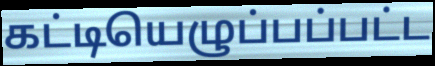
கட்டியெழுப்பப்பட்ட